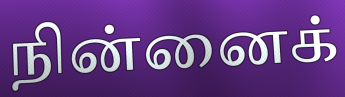
நின்னைக்